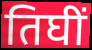
तिघीं